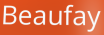
Beaufay